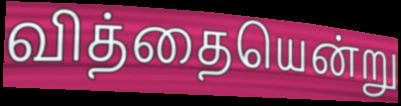
வித்தையென்று